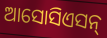
ଆସୋସିଏସନ୍